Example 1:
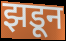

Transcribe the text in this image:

झडून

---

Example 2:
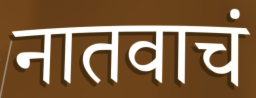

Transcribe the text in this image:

नातवाचं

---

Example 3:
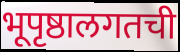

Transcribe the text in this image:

भूपृष्ठालगतची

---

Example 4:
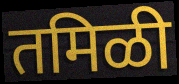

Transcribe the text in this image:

तमिळी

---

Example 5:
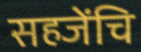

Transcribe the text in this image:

सहजेंचि